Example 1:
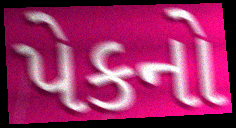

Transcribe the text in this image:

પેકનો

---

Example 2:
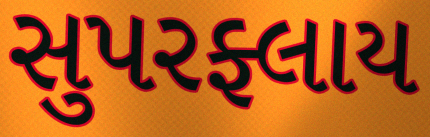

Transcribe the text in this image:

સુપરફ્લાય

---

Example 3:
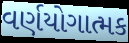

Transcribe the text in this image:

વર્ણયોગાત્મક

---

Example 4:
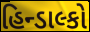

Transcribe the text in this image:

હિન્ડાલ્કો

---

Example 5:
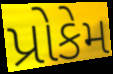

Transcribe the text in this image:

પ્રોકેમ